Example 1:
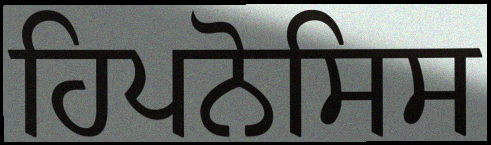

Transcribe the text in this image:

ਹਿਪਨੋਸਿਸ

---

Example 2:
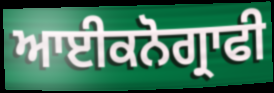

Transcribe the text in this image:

ਆਈਕਨੋਗ੍ਰਾਫੀ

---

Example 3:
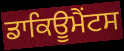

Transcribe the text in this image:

ਡਾਕਿਊਮੈਂਟਸ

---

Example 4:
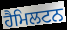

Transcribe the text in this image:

ਹੈਮਿਲਟਨ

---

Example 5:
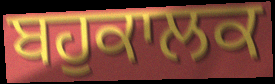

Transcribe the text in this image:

ਬਹੁਕਾਲਕ